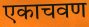
एकाचवण